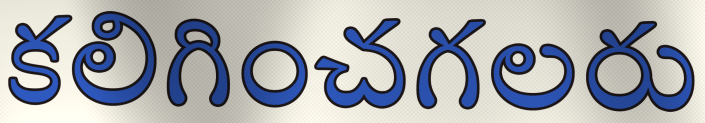
కలిగించగలరు